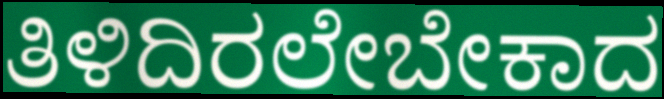
ತಿಳಿದಿರಲೇಬೇಕಾದ